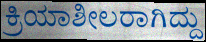
ಕ್ರಿಯಾಶೀಲರಾಗಿದ್ದು